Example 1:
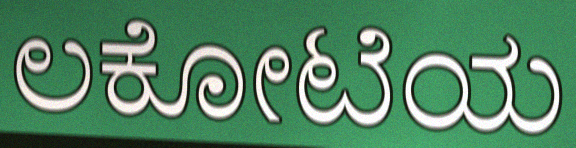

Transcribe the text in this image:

ಲಕೋಟೆಯ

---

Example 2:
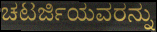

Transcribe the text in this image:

ಚಟರ್ಜಿಯವರನ್ನು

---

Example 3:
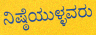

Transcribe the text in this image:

ನಿಷ್ಠೆಯುಳ್ಳವರು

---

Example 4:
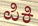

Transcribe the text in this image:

ಪಿಕಿ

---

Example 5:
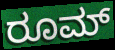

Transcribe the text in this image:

ರೂಮ್